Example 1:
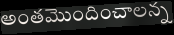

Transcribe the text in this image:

అంతమొందించాలన్న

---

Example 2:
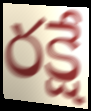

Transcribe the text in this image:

రక్షే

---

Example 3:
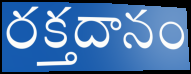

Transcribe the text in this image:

రక్తదానం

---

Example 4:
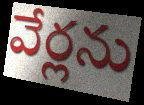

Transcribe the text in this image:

వేర్లను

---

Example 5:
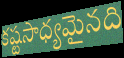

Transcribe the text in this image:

కష్టసాధ్యమైనది